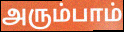
அரும்பாம்